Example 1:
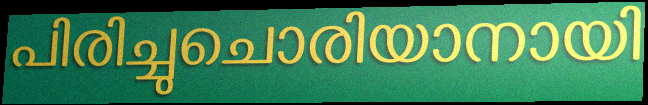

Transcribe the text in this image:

പിരിച്ചുചൊരിയാനായി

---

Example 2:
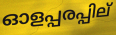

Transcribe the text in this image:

ഓളപ്പരപ്പില്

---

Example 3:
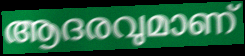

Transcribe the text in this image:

ആദരവുമാണ്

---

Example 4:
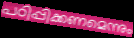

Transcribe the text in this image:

പഠിപ്പിക്കണമെന്നും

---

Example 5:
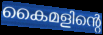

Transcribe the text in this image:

കൈമളിന്റെ